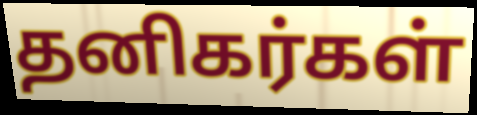
தனிகர்கள்